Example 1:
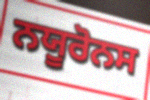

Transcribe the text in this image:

ਨਯੂਰੋਨਸ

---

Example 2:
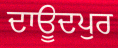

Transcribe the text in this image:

ਦਾਊਦਪੁਰ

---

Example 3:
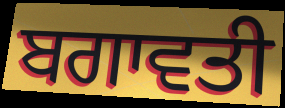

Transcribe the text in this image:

ਬਗਾਵਤੀ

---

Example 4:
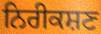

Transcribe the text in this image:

ਨਿਰੀਕਸ਼ਣ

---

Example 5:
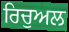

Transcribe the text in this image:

ਰਿਚੁਅਲ